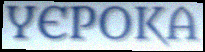
YEPOKA